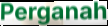
Perganah